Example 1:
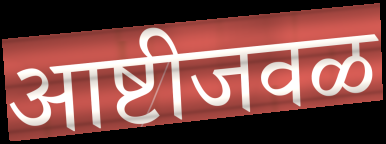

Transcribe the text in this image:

आष्टीजवळ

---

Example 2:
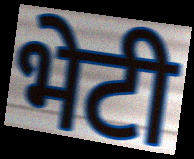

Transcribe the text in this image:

भेटी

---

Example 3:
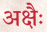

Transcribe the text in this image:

अक्षैः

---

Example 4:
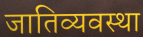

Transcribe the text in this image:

जातिव्यवस्था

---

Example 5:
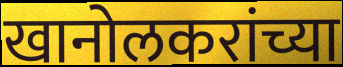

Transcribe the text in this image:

खानोलकरांच्या